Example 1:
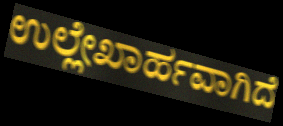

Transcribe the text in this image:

ಉಲ್ಲೇಖಾರ್ಹವಾಗಿದೆ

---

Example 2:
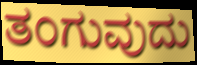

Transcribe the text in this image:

ತಂಗುವುದು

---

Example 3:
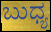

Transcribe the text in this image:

ಬುಧ್ಯ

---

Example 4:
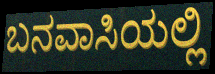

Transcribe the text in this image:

ಬನವಾಸಿಯಲ್ಲಿ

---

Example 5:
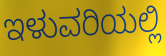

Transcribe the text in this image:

ಇಳುವರಿಯಲ್ಲಿ